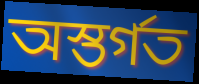
অস্তর্গত